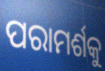
ପରାମର୍ଶକୁ